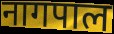
नागपाल